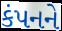
કંપનને